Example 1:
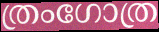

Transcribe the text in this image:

ത്രംഗോത്ര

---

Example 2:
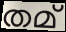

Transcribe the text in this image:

തമ്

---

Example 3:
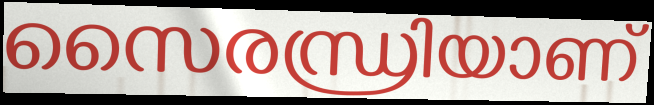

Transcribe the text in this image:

സൈരന്ധ്രിയാണ്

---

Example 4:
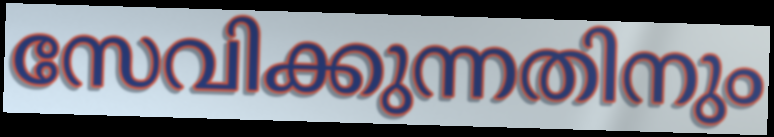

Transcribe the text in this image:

സേവിക്കുന്നതിനും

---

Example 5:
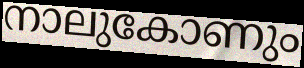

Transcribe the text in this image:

നാലുകോണും